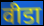
वीडा